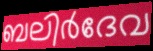
ബലിർദേവ